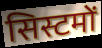
सिस्टमों